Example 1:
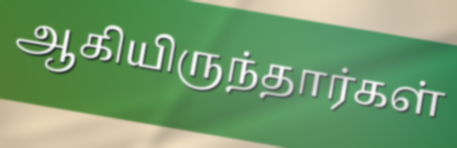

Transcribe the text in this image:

ஆகியிருந்தார்கள்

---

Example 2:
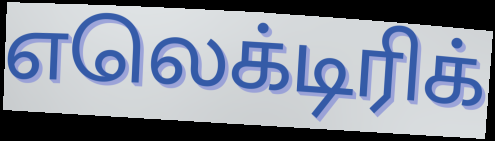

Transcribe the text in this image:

எலெக்டிரிக்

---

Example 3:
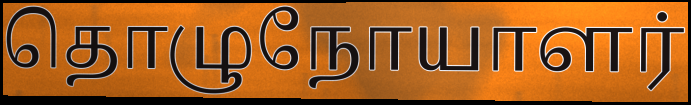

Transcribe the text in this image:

தொழுநோயாளர்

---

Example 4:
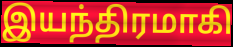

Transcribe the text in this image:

இயந்திரமாகி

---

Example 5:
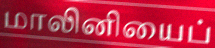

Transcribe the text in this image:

மாலினியைப்